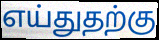
எய்துதற்கு